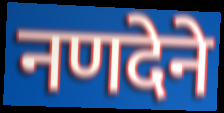
नणदेने